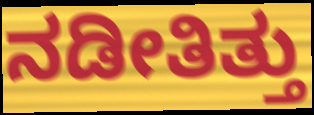
ನಡೀತಿತ್ತು